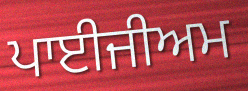
ਪਾਈਜੀਅਮ